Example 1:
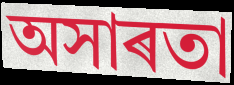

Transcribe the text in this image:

অসাৰতা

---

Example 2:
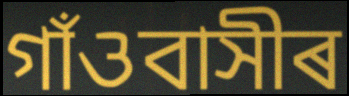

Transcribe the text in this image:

গাঁওবাসীৰ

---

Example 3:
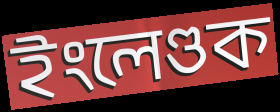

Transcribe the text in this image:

ইংলেণ্ডক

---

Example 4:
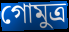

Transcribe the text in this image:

গোমুত্ৰ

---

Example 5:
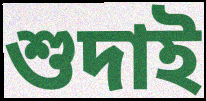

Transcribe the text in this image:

শুদাই